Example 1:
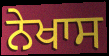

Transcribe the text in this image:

ਨੇਖਾਸ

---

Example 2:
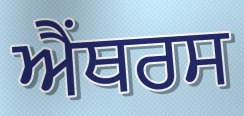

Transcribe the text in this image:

ਐਂਥਰਸ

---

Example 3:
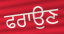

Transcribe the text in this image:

ਫਰਾਉਣ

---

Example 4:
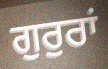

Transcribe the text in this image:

ਗੁਰੁਰਾਂ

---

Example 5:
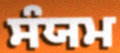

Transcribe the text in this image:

ਸੰਯਮ